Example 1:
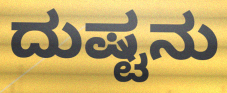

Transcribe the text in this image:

ದುಷ್ಟನು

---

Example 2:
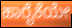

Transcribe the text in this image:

ಹಾರೈಕೆಯೇ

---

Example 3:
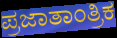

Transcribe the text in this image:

ಪ್ರಜಾತಾಂತ್ರಿಕ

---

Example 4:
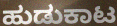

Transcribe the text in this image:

ಹುಡುಕಾಟ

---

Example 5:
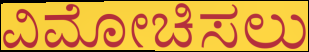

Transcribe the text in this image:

ವಿಮೋಚಿಸಲು